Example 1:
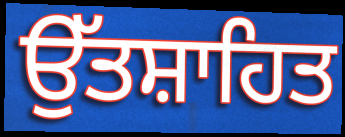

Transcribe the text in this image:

ਉੱਤਸ਼ਾਹਿਤ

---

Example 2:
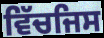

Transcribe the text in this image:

ਵਿੱਚਜਿਸ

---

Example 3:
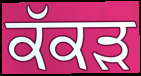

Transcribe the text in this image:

ਕੱਕਡ਼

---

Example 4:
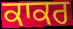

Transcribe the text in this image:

ਕਾਕਰ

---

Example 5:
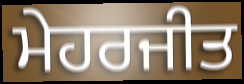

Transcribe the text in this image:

ਮੇਹਰਜੀਤ